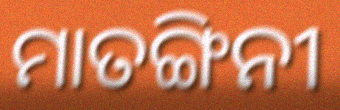
ମାତଙ୍ଗିନୀ